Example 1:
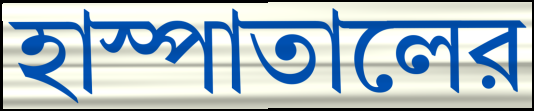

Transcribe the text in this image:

হাস্পাতালের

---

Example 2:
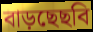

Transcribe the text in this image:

বাড়ছেছবি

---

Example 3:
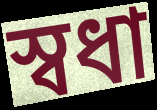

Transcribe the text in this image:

স্বধা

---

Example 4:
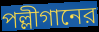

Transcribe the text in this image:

পল্লীগানের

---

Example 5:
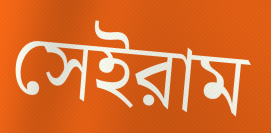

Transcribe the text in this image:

সেইরাম